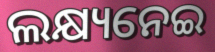
ଲକ୍ଷ୍ୟନେଇ